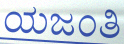
ಯಜಂತಿ